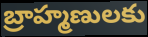
బ్రాహ్మణులకు